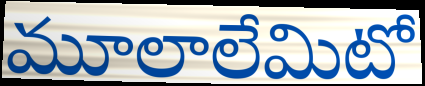
మూలాలేమిటో